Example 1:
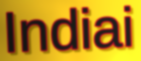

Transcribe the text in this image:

Indiai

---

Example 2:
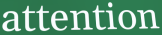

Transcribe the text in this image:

attention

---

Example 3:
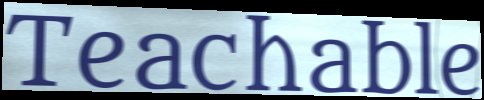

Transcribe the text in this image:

Teachable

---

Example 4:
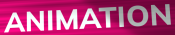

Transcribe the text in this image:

ANIMATION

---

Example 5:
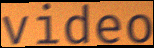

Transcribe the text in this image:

video